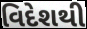
વિદેશથી